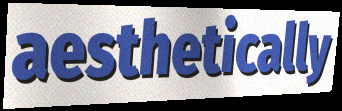
aesthetically